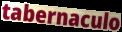
tabernaculo